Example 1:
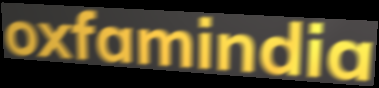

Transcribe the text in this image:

oxfamindia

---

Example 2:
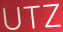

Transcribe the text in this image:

UTZ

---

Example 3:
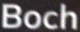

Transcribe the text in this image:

Boch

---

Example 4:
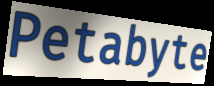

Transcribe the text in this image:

Petabyte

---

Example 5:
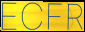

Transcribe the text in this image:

ECFR